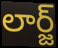
లార్జ్